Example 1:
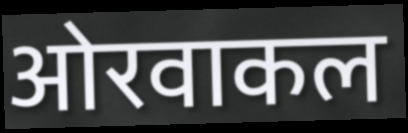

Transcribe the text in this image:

ओरवाकल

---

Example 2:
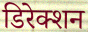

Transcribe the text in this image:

डिरेक्शन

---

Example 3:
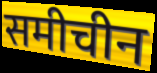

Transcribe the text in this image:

समीचीन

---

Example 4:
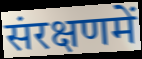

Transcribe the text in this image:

संरक्षणमें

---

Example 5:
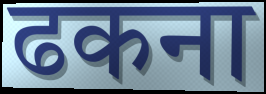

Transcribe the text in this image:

ढकना